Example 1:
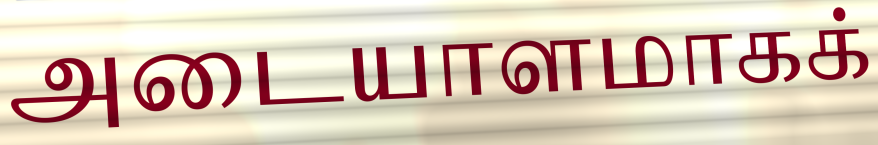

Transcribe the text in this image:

அடையாளமாகக்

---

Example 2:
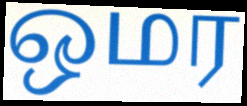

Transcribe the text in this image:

ஒமர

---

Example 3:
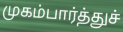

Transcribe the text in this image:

முகம்பார்த்துச்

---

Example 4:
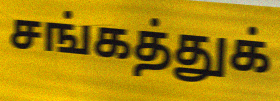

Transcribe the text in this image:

சங்கத்துக்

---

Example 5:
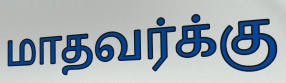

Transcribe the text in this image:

மாதவர்க்கு